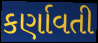
કર્ણાવતી